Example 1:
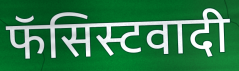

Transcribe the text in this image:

फॅसिस्टवादी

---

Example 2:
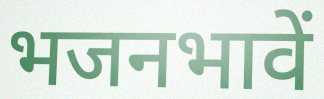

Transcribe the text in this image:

भजनभावें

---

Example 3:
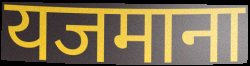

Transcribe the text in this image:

यजमाना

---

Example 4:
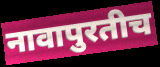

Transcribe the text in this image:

नावापुरतीच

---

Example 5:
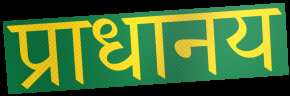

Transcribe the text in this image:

प्राधानय